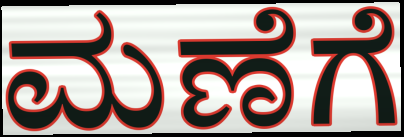
ಮಣೆಗೆ